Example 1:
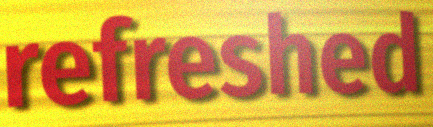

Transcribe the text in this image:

refreshed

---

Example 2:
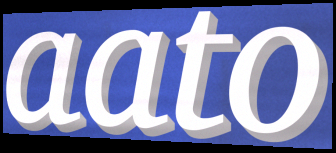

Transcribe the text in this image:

aato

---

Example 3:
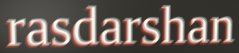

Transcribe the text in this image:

rasdarshan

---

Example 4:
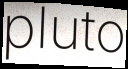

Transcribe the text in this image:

pluto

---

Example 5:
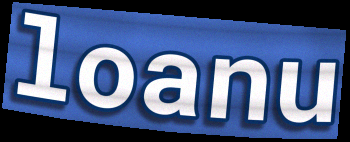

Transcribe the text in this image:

loanu